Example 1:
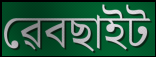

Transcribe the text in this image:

ৱেবছাইট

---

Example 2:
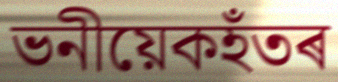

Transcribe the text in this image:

ভনীয়েকহঁতৰ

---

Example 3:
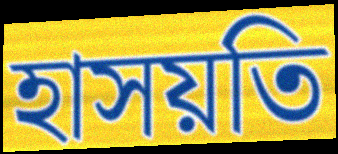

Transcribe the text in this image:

হাসয়তি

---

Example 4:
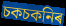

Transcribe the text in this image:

চকচকনিৰ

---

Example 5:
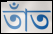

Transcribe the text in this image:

তাঁত